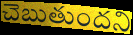
చెబుతుందని